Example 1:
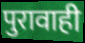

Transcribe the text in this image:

पुरावाही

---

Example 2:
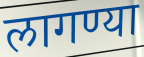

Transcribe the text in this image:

लागण्या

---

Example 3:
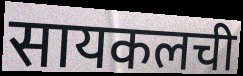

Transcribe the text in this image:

सायकलची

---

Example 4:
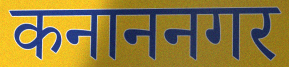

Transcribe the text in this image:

कनाननगर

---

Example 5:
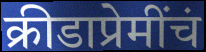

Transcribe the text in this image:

क्रीडाप्रेमींचं